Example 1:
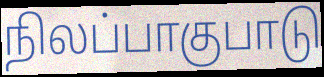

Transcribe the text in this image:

நிலப்பாகுபாடு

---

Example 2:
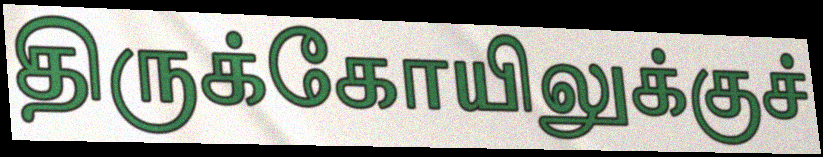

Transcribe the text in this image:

திருக்கோயிலுக்குச்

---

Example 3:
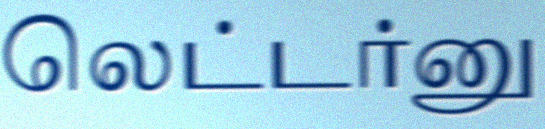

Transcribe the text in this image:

லெட்டர்னு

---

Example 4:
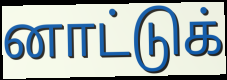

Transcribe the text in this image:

னாட்டுக்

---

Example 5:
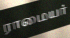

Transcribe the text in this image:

ராமையர்